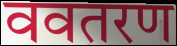
ववतरण